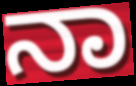
ನಾ